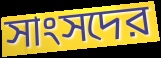
সাংসদের